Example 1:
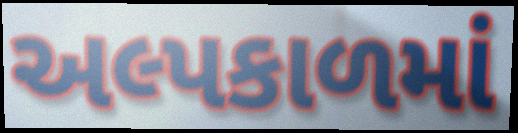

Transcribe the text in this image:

અલ્પકાળમાં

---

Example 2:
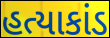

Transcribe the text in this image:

હત્યાકાંડ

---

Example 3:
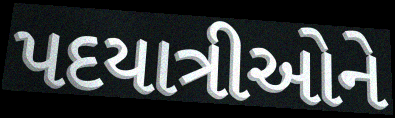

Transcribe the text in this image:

પદયાત્રીઓને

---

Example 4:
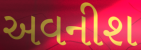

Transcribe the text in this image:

અવનીશ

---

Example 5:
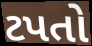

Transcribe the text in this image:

ટપતો